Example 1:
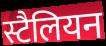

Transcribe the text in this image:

स्टैलियन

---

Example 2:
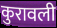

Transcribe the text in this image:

कुरावली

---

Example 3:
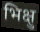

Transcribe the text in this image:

भिक्षु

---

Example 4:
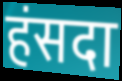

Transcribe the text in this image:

हंसदा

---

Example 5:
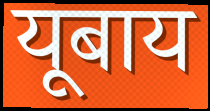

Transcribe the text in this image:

यूबाय